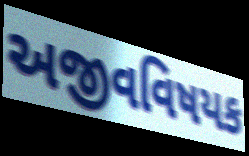
અજીવવિષયક